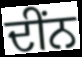
ਦੀਂਨ